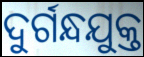
ଦୁର୍ଗନ୍ଧଯୁକ୍ତ